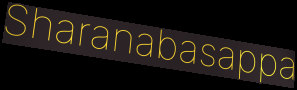
Sharanabasappa